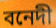
বনেদী